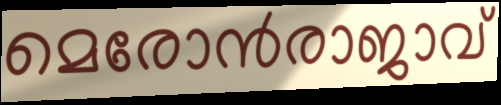
മെരോൻരാജാവ്